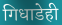
गिधाडेही